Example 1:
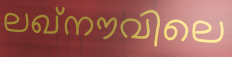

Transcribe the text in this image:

ലഖ്നൗവിലെ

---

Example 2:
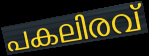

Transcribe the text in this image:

പകലിരവ്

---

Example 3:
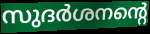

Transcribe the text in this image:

സുദർശനന്റെ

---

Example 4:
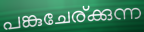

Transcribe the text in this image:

പങ്കുചേര്ക്കുന്ന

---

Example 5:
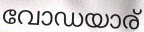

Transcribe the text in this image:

വോഡയാര്